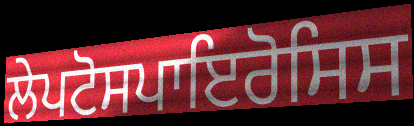
ਲੇਪਟੋਸਪਾਇਰੋਸਿਸ